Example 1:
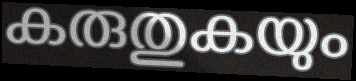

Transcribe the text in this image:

കരുതുകയും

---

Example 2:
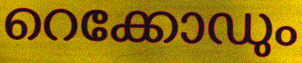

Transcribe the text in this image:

റെക്കോഡും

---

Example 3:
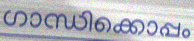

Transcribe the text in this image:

ഗാന്ധിക്കൊപ്പം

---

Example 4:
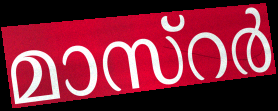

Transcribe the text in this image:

മാസ്റർ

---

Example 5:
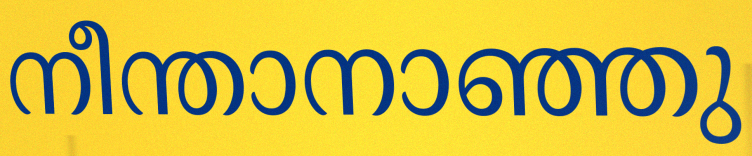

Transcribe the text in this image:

നീന്താനാഞ്ഞു